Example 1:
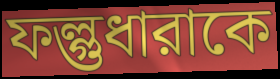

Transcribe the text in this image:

ফল্গুধারাকে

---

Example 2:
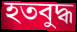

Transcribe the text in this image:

হতবুদ্ধ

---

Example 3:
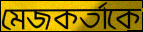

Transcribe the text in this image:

মেজকর্তাকে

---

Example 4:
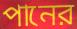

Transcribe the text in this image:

পানের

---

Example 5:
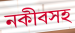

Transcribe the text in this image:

নকীবসহ